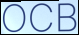
OCB